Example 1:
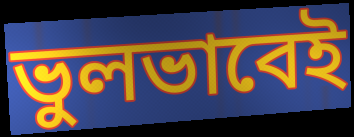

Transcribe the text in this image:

ভুলভাবেই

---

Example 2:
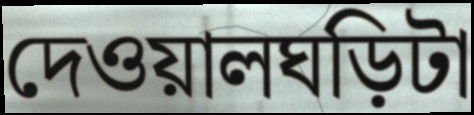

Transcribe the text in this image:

দেওয়ালঘড়িটা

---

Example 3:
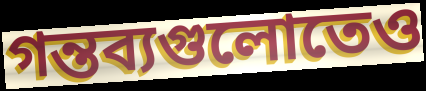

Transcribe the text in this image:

গন্তব্যগুলোতেও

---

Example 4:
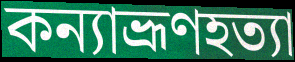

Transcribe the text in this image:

কন্যাভ্রূণহত্যা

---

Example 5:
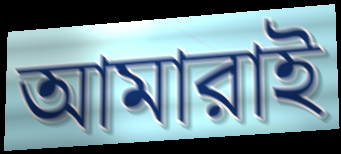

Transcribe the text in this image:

আমারাই